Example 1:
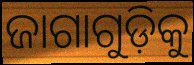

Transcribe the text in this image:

ଜାଗାଗୁଡ଼ିକୁ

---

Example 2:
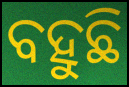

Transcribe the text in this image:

ବହୁଛି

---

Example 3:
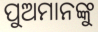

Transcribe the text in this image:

ପୁଅମାନଙ୍କୁ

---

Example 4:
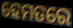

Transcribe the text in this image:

ହେମତରେ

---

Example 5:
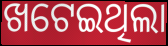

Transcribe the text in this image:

ଖଟେଇଥିଲା